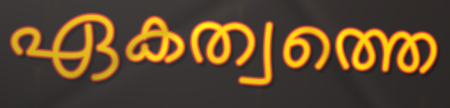
ഏകത്വത്തെ